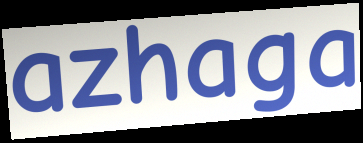
azhaga